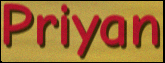
Priyan